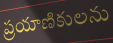
ప్రయాణికులను